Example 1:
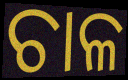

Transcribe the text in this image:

ଚାଳ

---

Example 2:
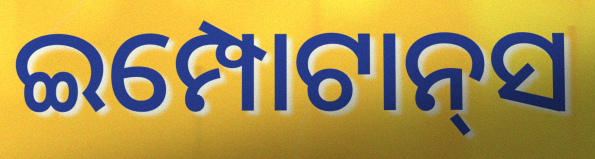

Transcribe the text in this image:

ଇମ୍ପୋଟାନ୍‌ସ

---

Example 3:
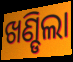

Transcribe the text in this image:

ଖଣ୍ଡିଲା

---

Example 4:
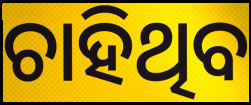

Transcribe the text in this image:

ଚାହିଥିବ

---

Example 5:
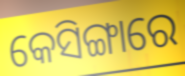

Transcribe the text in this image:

କେସିଙ୍ଗାରେ